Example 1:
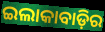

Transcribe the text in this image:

ଇଲାକାବାଡ଼ିର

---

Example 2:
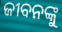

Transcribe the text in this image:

ଜୀବନଙ୍କୁ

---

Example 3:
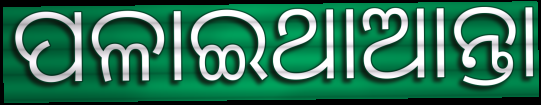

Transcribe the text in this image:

ପଳାଇଥାଆନ୍ତା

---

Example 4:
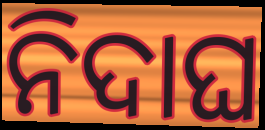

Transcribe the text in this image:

ନିଦାଘ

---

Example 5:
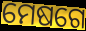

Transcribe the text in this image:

ମେଷଗେ